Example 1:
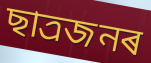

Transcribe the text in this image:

ছাত্ৰজনৰ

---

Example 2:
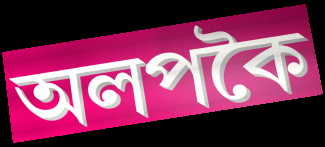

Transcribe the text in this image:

অলপকৈ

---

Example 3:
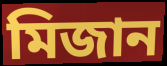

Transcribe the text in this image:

মিজান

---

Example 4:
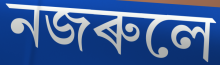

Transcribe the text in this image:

নজৰুলে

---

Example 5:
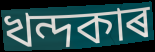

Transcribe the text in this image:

খন্দকাৰ